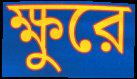
ক্ষুরে